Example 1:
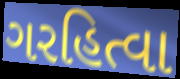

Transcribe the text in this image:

ગરહિત્વા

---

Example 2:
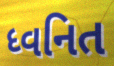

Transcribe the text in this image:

ધ્વનિત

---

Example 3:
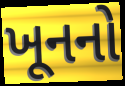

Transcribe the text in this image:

ખૂનનો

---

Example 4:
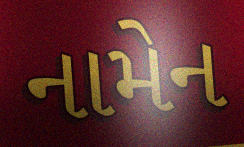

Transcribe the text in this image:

નામેન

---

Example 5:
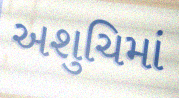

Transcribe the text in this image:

અશુચિમાં